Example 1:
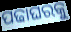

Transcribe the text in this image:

ପଢାଘରକୁ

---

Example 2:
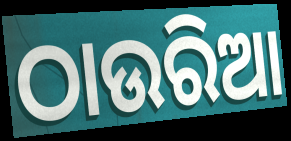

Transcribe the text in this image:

ଠାଉରିଆ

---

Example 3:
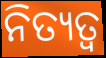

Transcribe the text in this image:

ନିତ୍ୟତ୍ୱ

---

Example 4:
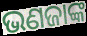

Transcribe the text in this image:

ଭଣଜାଙ୍କ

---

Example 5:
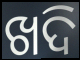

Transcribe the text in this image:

ଖଦି